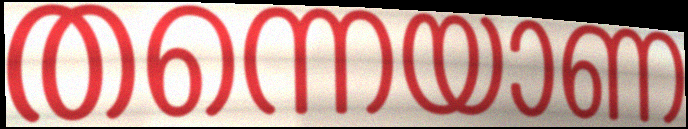
തന്നെയാണ